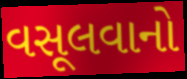
વસૂલવાનો